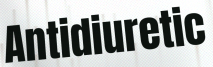
Antidiuretic